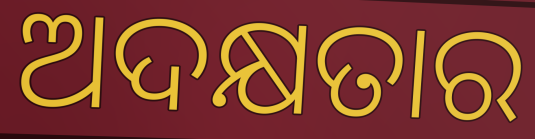
ଅଦକ୍ଷତାର